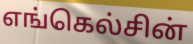
எங்கெல்சின்